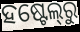
ହଷ୍ଟେଲ୍‍ରୁ